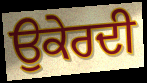
ਉਕੇਰਦੀ